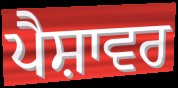
ਪੈਸ਼ਾਵਰ